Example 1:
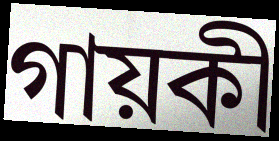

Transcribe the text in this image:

গায়কী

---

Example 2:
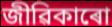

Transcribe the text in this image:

জীৱিকাৰো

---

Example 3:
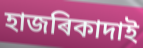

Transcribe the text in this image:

হাজৰিকাদাই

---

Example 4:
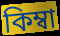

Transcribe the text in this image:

কিম্বা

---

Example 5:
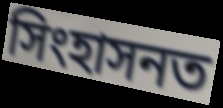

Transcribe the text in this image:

সিংহাসনত